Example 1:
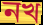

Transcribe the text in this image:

নখ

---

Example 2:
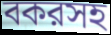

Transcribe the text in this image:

বকরসহ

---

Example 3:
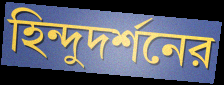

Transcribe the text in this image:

হিন্দুদর্শনের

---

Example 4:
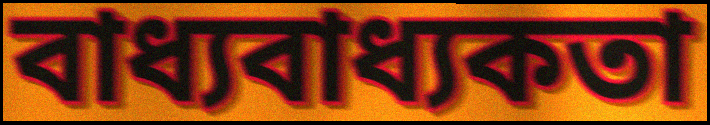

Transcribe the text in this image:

বাধ্যবাধ্যকতা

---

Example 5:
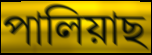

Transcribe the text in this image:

পালিয়াছ